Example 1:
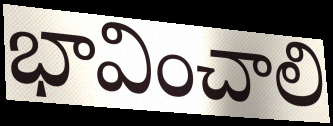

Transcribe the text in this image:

భావించాలి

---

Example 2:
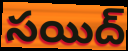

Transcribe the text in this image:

సయిద్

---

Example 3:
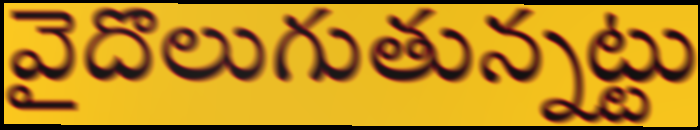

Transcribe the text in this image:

వైదొలుగుతున్నట్టు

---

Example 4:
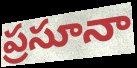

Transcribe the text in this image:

ప్రసూనా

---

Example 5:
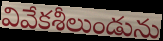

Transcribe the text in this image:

వివేకశీలుండును